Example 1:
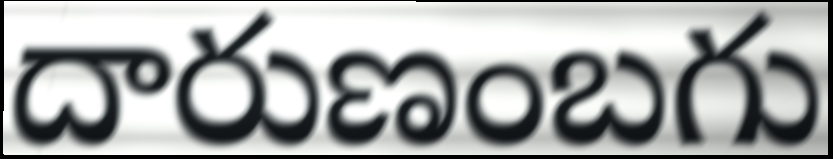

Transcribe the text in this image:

దారుణంబగు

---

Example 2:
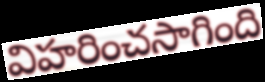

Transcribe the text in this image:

విహరించసాగింది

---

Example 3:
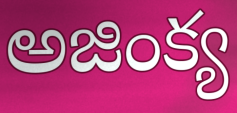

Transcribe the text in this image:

అజింక్య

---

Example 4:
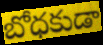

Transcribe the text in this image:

బోధకుడా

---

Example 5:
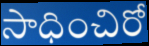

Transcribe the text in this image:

సాధించిరో